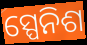
ସ୍ପେନିଶ